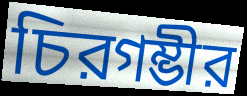
চিরগম্ভীর